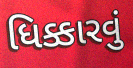
ધિક્કારવું